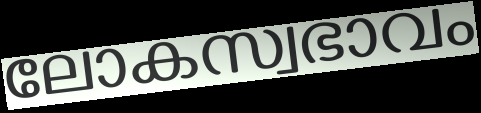
ലോകസ്വഭാവം